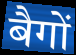
बैगों